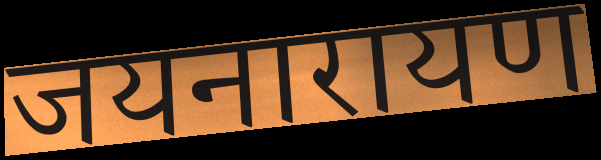
जयनारायण